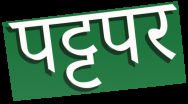
पट्टपर